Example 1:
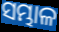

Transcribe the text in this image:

ସମ୍ଭାଳ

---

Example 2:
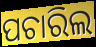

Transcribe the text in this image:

ପଚାରିଲ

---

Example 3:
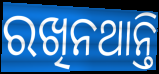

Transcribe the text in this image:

ରଖିନଥାନ୍ତି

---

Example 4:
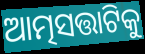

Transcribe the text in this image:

ଆତ୍ମସତ୍ତାଟିକୁ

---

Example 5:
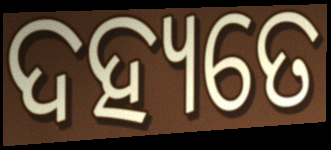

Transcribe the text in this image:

ଦହ୍ୟତେ